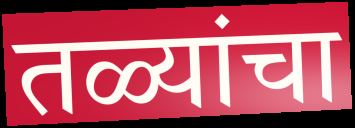
तळ्यांचा